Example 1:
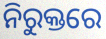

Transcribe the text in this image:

ନିରୁକ୍ତରେ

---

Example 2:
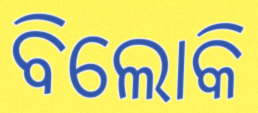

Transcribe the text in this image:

ବିଲୋକି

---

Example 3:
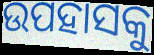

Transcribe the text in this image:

ଉପହାସକୁ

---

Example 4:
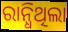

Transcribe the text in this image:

ରାନ୍ଧିଥିଲା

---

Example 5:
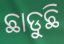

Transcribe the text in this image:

ଛାଡୁଛି